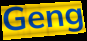
Geng